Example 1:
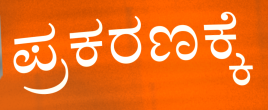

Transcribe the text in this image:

ಪ್ರಕರಣಕ್ಕೆ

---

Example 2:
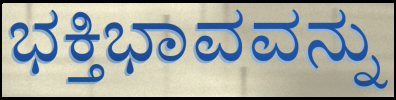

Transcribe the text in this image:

ಭಕ್ತಿಭಾವವನ್ನು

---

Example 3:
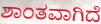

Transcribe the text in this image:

ಶಾಂತವಾಗಿದೆ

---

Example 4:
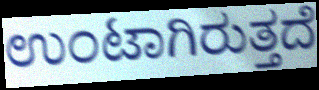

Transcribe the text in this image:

ಉಂಟಾಗಿರುತ್ತದೆ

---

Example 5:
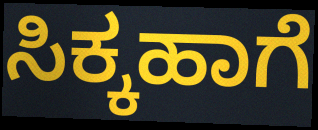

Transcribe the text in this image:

ಸಿಕ್ಕಹಾಗೆ